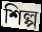
শিল্প